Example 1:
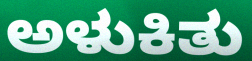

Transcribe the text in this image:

ಅಳುಕಿತು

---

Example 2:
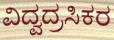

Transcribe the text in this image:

ವಿದ್ವದ್ರಸಿಕರ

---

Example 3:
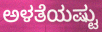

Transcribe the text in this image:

ಅಳತೆಯಷ್ಟು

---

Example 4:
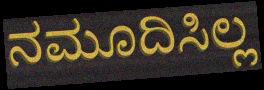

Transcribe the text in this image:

ನಮೂದಿಸಿಲ್ಲ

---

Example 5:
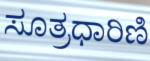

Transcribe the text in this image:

ಸೂತ್ರಧಾರಿಣಿ